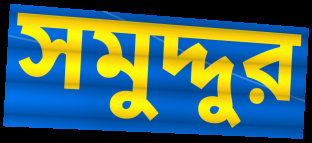
সমুদ্দুর